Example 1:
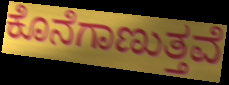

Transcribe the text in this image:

ಕೊನೆಗಾಣುತ್ತವೆ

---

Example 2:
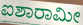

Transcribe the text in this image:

ಐಶಾರಾಮೀ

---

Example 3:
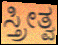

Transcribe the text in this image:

ಸ್ತ್ರೀತ್ವ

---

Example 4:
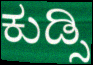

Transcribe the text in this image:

ಕುಡ್ಸಿ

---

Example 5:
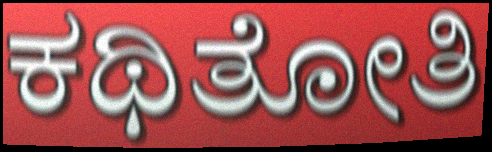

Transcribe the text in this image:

ಕಥಿತೋತಿ